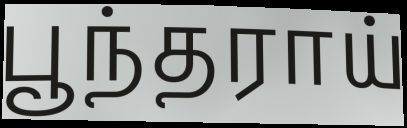
பூந்தராய்